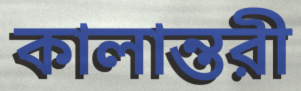
কালান্তরী